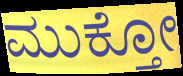
ಮುಕ್ತೋ